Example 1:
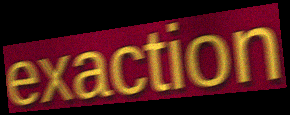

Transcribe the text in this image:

exaction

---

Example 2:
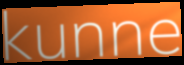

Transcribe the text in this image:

kunne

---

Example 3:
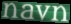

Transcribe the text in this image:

navn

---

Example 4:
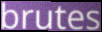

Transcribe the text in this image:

brutes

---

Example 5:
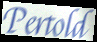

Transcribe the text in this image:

Pertold